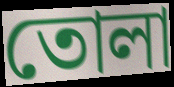
তোলা